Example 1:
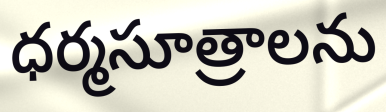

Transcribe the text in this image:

ధర్మసూత్రాలను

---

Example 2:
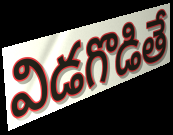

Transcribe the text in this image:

విడగొడితే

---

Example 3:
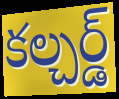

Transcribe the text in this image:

కల్చర్డ్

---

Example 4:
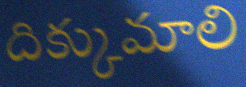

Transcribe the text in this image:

దిక్కుమాలి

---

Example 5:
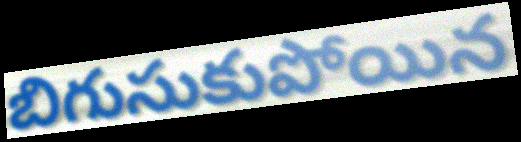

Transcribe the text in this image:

బిగుసుకుపోయిన